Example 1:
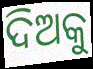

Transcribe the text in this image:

ଦିଅକୁ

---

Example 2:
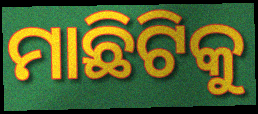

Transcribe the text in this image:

ମାଛିଟିକୁ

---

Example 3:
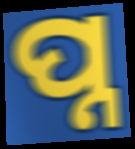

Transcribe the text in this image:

ପ୍ନ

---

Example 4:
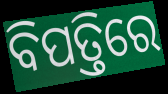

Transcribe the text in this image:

ବିପତ୍ତିରେ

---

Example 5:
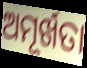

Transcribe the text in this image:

ଅମୂର୍ଖତା